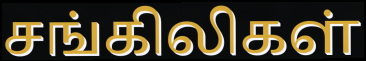
சங்கிலிகள்